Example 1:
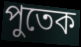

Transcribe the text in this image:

পুতেক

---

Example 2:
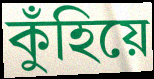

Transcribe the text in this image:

কুঁহিয়ে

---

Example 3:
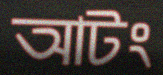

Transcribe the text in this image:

আটং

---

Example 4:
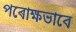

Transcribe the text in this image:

পৰোক্ষভাবে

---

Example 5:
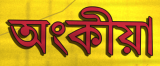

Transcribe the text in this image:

অংকীয়া